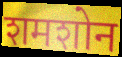
शमशोन